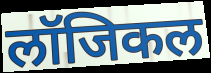
लॉजिकल